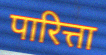
पारित्ता